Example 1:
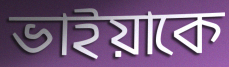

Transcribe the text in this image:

ভাইয়াকে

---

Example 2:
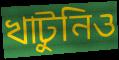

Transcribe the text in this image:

খাটুনিও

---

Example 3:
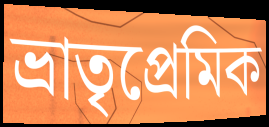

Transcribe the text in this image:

ভ্রাতৃপ্রেমিক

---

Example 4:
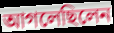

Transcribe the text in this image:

আগলেছিলেন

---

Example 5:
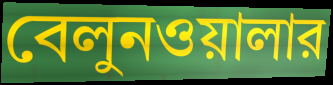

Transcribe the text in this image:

বেলুনওয়ালার